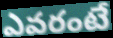
ఎవరంటే